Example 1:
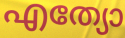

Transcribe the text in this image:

എത്യോ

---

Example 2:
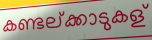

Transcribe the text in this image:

കണ്ടല്ക്കാടുകള്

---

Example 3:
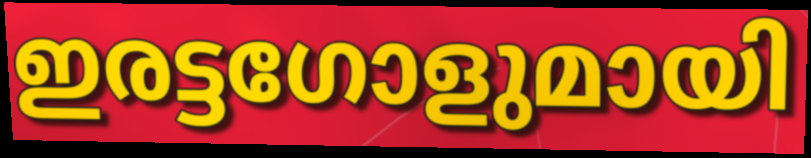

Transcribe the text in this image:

ഇരട്ടഗോളുമായി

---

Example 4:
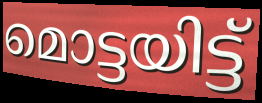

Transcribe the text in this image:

മൊട്ടയിട്ട്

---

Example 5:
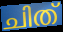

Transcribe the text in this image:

ചിത്